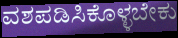
ವಶಪಡಿಸಿಕೊಳ್ಳಬೇಕು